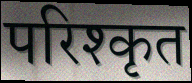
परिश्कृत